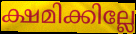
ക്ഷമിക്കില്ലേ